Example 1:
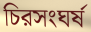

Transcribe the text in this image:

চিরসংঘর্ষ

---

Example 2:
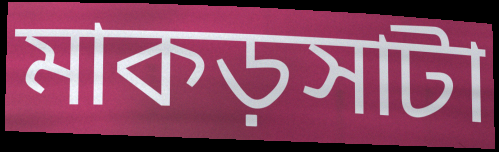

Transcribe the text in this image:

মাকড়সাটা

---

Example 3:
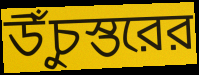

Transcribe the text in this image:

উঁচুস্তরের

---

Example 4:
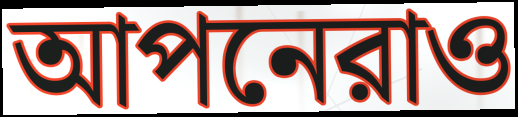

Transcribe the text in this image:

আপনেরাও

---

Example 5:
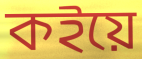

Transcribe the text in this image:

কইয়ে